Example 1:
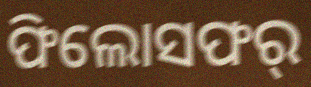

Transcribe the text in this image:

ଫିଲୋସଫର୍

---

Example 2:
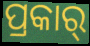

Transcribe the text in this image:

ପ୍ରକାର୍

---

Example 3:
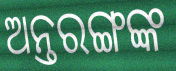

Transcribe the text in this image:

ଅନ୍ତରଙ୍ଗଙ୍କ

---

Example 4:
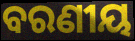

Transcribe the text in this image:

ବରଣୀୟ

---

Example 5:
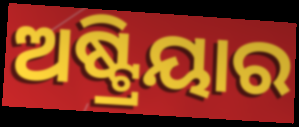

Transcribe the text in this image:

ଅଷ୍ଟ୍ରିୟାର